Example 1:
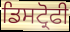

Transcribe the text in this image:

ਡਿਸਟ੍ਰੋਫੀ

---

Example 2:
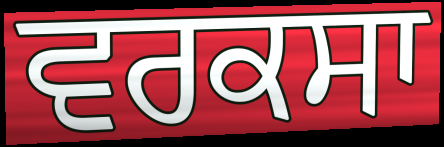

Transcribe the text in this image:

ਵਰਕਸਾ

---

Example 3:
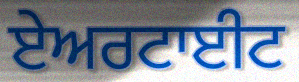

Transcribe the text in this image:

ਏਅਰਟਾਈਟ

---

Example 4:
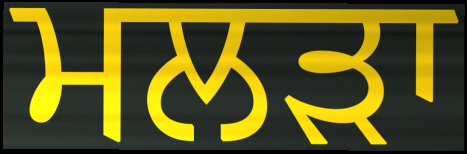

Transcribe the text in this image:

ਮਲੜਾ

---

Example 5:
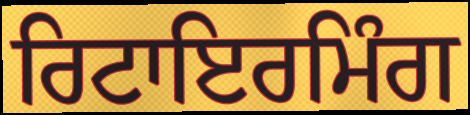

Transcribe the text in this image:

ਰਿਟਾਇਰਮਿੰਗ